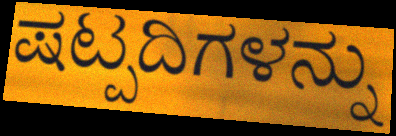
ಷಟ್ಪದಿಗಳನ್ನು